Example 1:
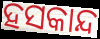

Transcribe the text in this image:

ହସକାନ୍ଦ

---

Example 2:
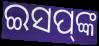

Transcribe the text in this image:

ଇସପ୍‌ଙ୍କ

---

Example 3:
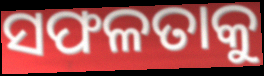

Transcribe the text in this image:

ସଫଳତାକୁ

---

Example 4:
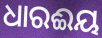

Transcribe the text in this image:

ଧାରଈୟ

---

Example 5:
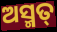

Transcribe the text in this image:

ଅସ୍ମତ୍